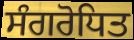
ਸੰਗਰੋਧਿਤ